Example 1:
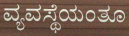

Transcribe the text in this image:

ವ್ಯವಸ್ಥೆಯಂತೂ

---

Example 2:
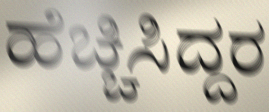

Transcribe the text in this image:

ಹೆಚ್ಚಿಸಿದ್ದರ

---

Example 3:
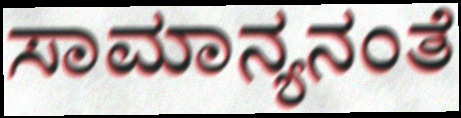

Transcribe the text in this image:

ಸಾಮಾನ್ಯನಂತೆ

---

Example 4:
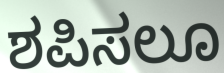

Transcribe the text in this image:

ಶಪಿಸಲೂ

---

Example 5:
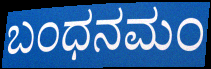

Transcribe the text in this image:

ಬಂಧನಮಂ